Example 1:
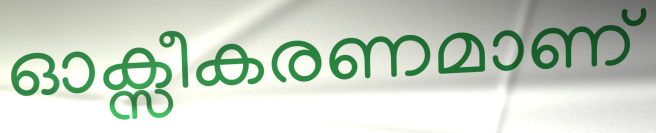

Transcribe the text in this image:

ഓക്സീകരണമാണ്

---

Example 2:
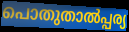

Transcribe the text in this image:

പൊതുതാൽപ്പര്യ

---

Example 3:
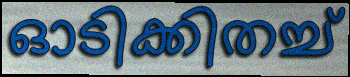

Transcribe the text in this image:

ഓടിക്കിതച്ച്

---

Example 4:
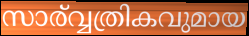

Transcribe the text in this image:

സാര്വ്വത്രികവുമായ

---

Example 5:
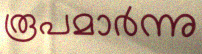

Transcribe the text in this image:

രൂപമാർന്നു